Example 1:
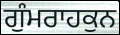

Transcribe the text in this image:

ਗੁੰਮਰਾਹਕੁਨ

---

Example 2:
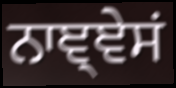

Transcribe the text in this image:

ਨਾਞ੍ਞੇਸਂ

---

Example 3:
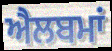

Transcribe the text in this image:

ਐਲਬਮਾਂ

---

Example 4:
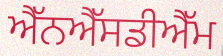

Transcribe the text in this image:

ਐੱਨਐੱਸਡੀਐੱਮ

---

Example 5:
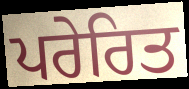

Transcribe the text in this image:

ਪਰੇਰਿਤ